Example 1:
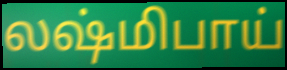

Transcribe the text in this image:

லஷ்மிபாய்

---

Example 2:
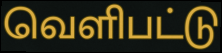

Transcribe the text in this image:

வெளிபட்டு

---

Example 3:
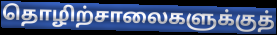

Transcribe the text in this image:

தொழிற்சாலைகளுக்குத்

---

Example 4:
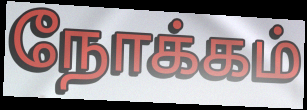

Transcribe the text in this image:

நோக்கம்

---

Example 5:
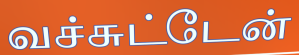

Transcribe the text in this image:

வச்சுட்டேன்